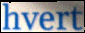
hvert